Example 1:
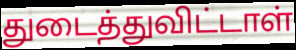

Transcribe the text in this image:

துடைத்துவிட்டாள்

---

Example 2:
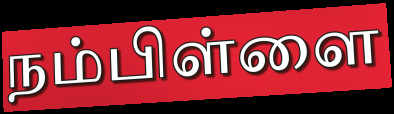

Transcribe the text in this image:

நம்பிள்ளை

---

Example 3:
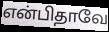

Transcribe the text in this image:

என்பிதாவே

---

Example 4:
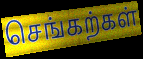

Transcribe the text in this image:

செங்கற்கள்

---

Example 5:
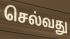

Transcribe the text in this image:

செல்வது